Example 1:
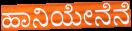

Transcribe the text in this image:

ಹಾನಿಯೇನೆನೆ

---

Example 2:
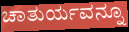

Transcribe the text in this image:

ಚಾತುರ್ಯವನ್ನೂ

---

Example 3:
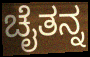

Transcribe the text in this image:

ಚೈತನ್ನ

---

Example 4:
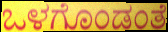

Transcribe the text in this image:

ಒಳಗೊಂಡಂತೆ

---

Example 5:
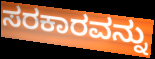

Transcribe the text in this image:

ಸರಕಾರವನ್ನು